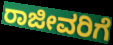
ರಾಜೀವರಿಗೆ